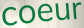
coeur